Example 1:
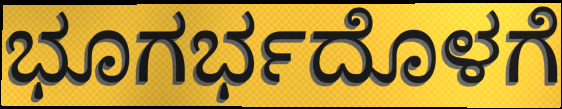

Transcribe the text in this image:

ಭೂಗರ್ಭದೊಳಗೆ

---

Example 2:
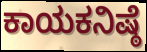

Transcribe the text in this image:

ಕಾಯಕನಿಷ್ಠೆ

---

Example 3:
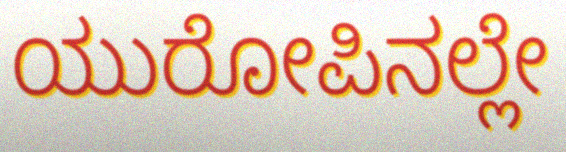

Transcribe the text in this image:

ಯುರೋಪಿನಲ್ಲೇ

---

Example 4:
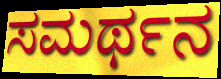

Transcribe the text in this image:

ಸಮರ್ಥನ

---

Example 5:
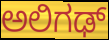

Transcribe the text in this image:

ಅಲಿಗಢ್